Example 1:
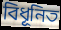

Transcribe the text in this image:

বিধূনিত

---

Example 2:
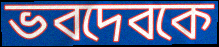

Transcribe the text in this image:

ভবদেবকে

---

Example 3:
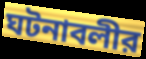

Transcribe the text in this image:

ঘটনাবলীর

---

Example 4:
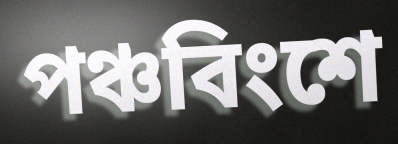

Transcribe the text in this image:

পঞ্চবিংশে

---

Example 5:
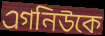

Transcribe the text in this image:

এগনিউকে